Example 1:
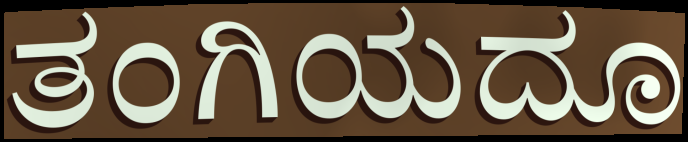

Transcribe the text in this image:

ತಂಗಿಯದೂ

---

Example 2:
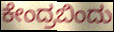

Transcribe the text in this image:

ಕೇಂದ್ರಬಿಂದು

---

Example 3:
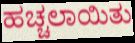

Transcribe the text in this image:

ಹಚ್ಚಲಾಯಿತು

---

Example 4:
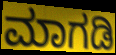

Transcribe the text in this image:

ಮಾಗಡಿ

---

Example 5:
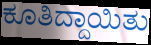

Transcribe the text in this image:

ಕೂತಿದ್ದಾಯಿತು